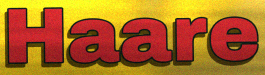
Haare